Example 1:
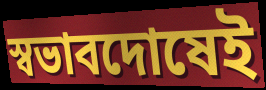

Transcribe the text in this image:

স্বভাবদোষেই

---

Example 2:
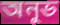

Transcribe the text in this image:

অনুভ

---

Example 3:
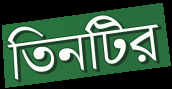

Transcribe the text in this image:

তিনটির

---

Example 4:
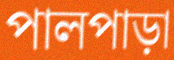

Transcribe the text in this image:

পালপাড়া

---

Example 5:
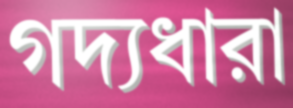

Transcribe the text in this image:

গদ্যধারা